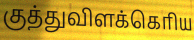
குத்துவிளக்கெரிய